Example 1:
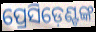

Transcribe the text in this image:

ପ୍ରେସିଡ଼େଣ୍ଟଙ୍କ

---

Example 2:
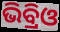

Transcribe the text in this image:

ଭିବ୍ରିଓ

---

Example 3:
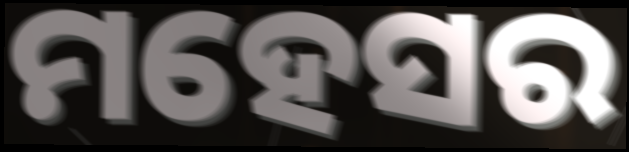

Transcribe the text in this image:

ମହେସର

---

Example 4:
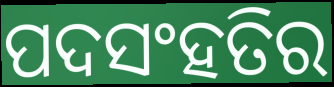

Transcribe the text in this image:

ପଦସଂହତିର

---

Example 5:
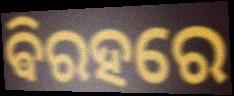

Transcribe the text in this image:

ଵିରହରେ